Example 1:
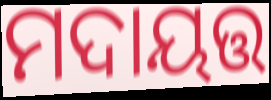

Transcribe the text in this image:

ମଦାୟତ୍ତ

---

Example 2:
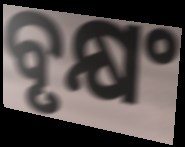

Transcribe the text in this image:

ବୃକ୍ଷଂ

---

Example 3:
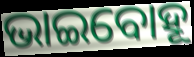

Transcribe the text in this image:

ଭାଇବୋହୂ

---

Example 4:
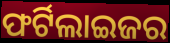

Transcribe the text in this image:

ଫର୍ଟିଲାଇଜର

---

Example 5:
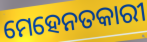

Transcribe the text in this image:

ମେହେନତକାରୀ